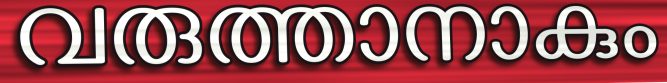
വരുത്താനാകും